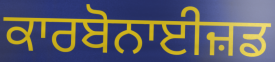
ਕਾਰਬੋਨਾਈਜ਼ਡ